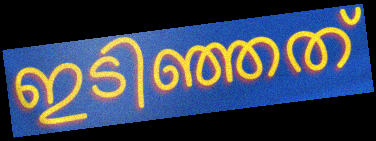
ഇടിഞ്ഞത്